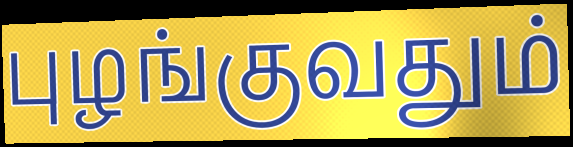
புழங்குவதும்